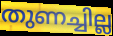
തുണച്ചില്ല